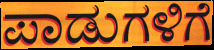
ಪಾಡುಗಳಿಗೆ